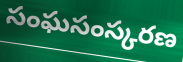
సంఘసంస్కరణ